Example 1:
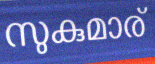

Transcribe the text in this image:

സുകുമാര്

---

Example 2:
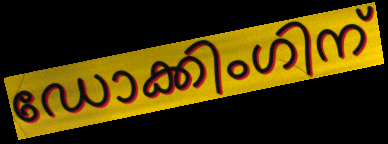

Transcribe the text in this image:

ഡോക്കിംഗിന്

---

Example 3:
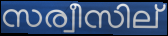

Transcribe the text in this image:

സര്വീസില്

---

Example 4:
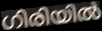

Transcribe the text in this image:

ഗിരിയിൽ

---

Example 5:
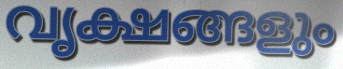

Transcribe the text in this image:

വൃക്ഷങ്ങളും